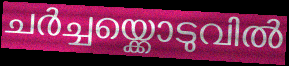
ചർച്ചയ്ക്കൊടുവിൽ